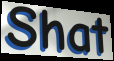
Shat